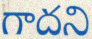
గాదని